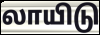
லாயிடு